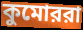
কুমোররা